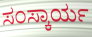
ಸಂಸ್ಕಾರ್ಯ